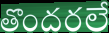
తొందరలే